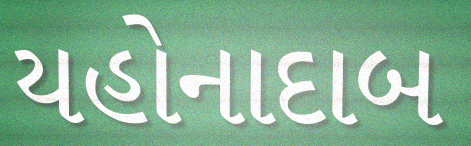
યહોનાદાબ